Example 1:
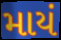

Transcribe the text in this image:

માયં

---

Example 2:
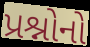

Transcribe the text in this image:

પ્રશ્નોનો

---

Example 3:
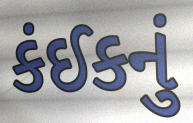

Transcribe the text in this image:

કંઈકનું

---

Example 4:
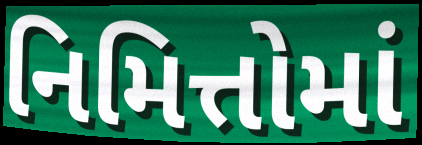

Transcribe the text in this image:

નિમિત્તોમાં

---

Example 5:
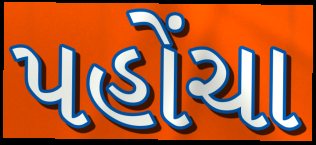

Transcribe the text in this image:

પહોંચા